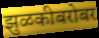
झुळकीबरोबर